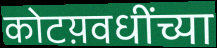
कोटय़वधींच्या